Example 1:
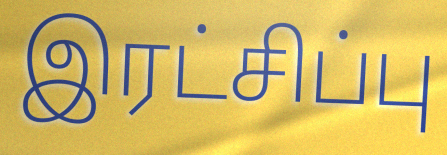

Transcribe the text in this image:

இரட்சிப்பு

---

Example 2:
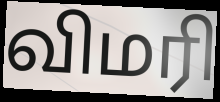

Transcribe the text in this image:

விமரி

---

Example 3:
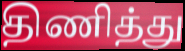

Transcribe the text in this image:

திணித்து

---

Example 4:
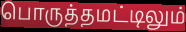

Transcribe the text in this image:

பொருத்தமட்டிலும்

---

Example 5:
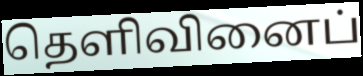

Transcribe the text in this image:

தெளிவினைப்